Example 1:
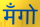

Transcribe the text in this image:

मँगो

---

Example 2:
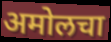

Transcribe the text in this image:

अमोलचा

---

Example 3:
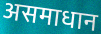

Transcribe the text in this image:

असमाधान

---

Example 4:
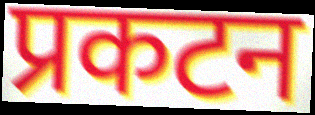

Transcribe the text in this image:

प्रकटन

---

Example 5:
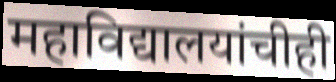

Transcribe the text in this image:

महाविद्यालयांचीही